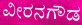
ವೀರನಗೌಡ